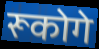
रूकोगे